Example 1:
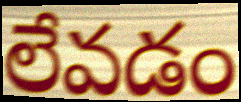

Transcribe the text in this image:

లేవడం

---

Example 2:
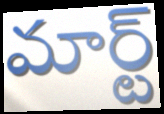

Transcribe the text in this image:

మార్ట్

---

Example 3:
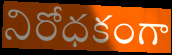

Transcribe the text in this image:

నిరోధకంగా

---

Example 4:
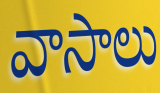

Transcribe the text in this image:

వాసాలు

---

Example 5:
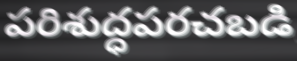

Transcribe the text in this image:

పరిశుద్ధపరచబడి